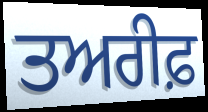
ਤਅਰੀਫ਼